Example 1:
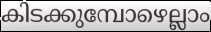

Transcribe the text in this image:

കിടക്കുമ്പോഴെല്ലാം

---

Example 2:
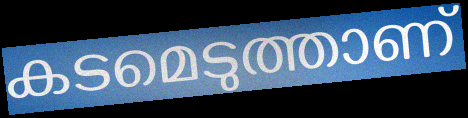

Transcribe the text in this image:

കടമെടുത്താണ്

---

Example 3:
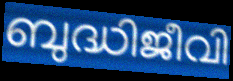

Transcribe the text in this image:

ബുദ്ധിജീവി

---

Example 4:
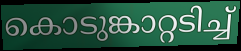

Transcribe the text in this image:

കൊടുങ്കാറ്റടിച്ച്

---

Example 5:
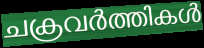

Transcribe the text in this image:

ചക്രവർത്തികൾ